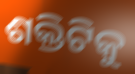
ଶକ୍ତିଟିକୁ